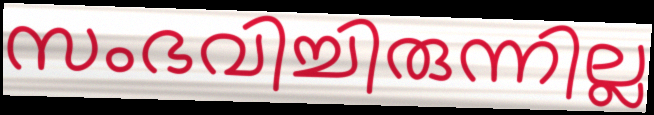
സംഭവിച്ചിരുന്നില്ല